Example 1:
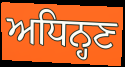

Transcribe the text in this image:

ਅਧਿਨ੍ਹਣ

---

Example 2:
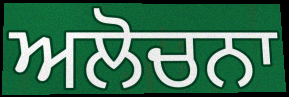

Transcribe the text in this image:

ਅਲੋਚਨਾ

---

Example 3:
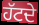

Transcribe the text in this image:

ਹੱਟਦੇ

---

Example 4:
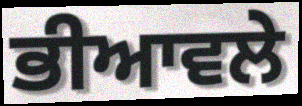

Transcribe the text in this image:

ਭੀਆਵਲੇ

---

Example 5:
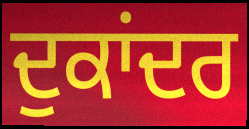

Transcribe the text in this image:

ਦੁਕਾਂਦਰ